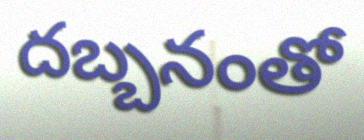
దబ్బనంతో